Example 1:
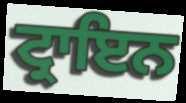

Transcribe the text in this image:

ਟ੍ਰਾਇਨ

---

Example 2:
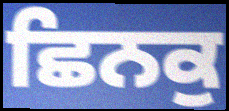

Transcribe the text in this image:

ਛਿਨਕੁ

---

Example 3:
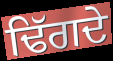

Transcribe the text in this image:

ਢਿੱਗਦੇ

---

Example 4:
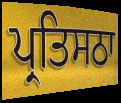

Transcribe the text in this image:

ਪ੍ਰਤਿਸਠਾ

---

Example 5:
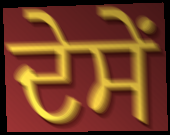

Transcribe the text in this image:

ਦੇਸੇਂ